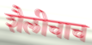
शैलीचाच